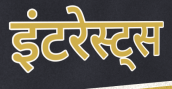
इंटरेस्ट्स